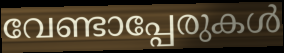
വേണ്ടാപ്പേരുകൾ